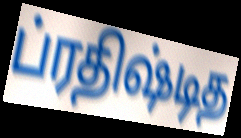
ப்ரதிஷ்டித